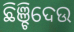
ଛିଞ୍ଚିଦେଉ